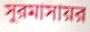
সুরমাসায়র